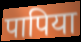
पापिया